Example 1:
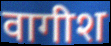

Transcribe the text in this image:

वागीश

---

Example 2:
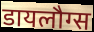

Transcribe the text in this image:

डायलौग्स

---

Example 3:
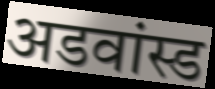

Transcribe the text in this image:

अडवांस्ड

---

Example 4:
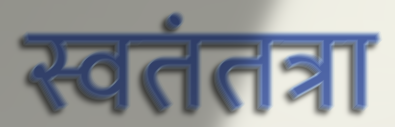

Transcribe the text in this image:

स्वतंतत्रा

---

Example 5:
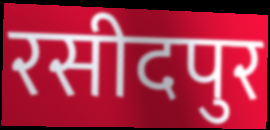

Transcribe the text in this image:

रसीदपुर